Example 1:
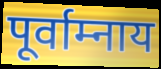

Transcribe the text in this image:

पूर्वाम्नाय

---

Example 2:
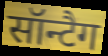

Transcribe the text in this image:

सॉन्टैग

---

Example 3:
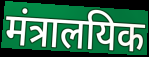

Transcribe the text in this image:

मंत्रालयिक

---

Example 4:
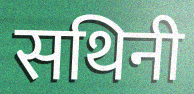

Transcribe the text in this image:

सथिनी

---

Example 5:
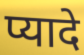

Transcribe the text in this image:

प्यादे